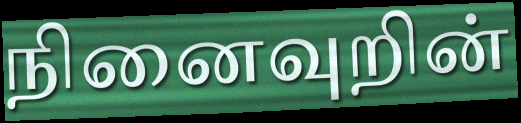
நினைவுறின்